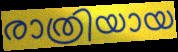
രാത്രിയായ